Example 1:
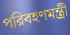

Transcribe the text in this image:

পরিবহণমন্ত্রী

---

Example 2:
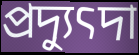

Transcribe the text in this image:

প্রদ্যুৎদা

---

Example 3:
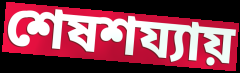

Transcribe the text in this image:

শেষশয্যায়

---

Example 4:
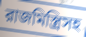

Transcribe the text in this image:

রাজমিস্ত্রিসহ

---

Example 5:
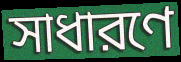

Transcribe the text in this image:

সাধারণে